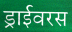
ड्राईवरस